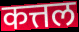
कत्तल